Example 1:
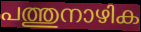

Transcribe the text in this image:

പത്തുനാഴിക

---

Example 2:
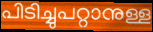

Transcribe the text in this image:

പിടിച്ചുപറ്റാനുള്ള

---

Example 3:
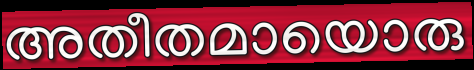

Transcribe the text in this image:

അതീതമായൊരു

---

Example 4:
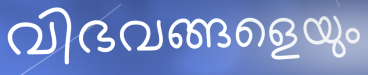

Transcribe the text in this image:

വിഭവങ്ങളെയും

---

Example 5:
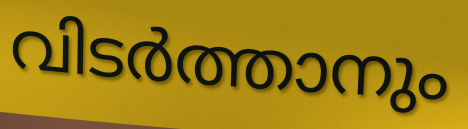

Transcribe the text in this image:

വിടർത്താനും